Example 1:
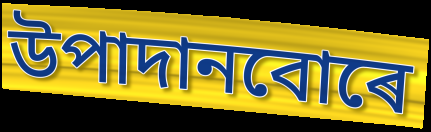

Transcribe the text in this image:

উপাদানবোৰে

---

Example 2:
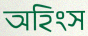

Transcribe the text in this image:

অহিংস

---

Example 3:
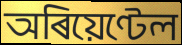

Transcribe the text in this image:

অৰিয়েণ্টেল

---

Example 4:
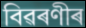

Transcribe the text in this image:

বিৱৰণীৰ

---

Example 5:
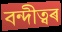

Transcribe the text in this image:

বন্দীত্বৰ